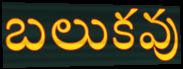
బలుకవు